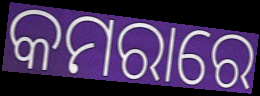
କମରାରେ